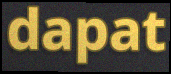
dapat